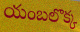
యంబలొక్క